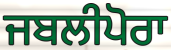
ਜਬਲੀਪੋਰਾ